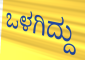
ಒಳಗಿದ್ದು